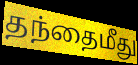
தந்தைமீது